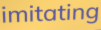
imitating